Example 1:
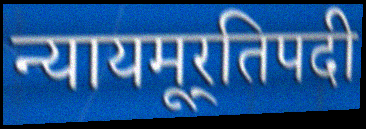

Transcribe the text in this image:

न्यायमूर्तिपदी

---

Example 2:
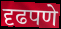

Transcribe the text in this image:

दृढपणे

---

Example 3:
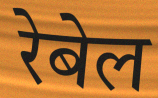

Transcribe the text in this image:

रेबेल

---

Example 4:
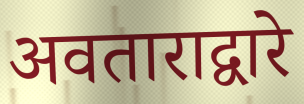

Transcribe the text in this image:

अवताराद्वारे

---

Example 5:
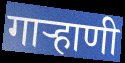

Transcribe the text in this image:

गार्‍हाणी